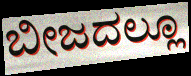
ಬೀಜದಲ್ಲೂ